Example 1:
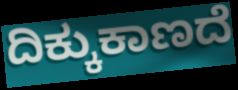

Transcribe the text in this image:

ದಿಕ್ಕುಕಾಣದೆ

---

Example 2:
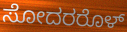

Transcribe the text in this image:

ಸೋದರರೊಳ್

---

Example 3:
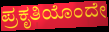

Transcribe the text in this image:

ಪ್ರಕೃತಿಯೊಂದೇ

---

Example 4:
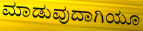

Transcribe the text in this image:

ಮಾಡುವುದಾಗಿಯೂ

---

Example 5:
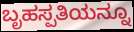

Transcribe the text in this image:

ಬೃಹಸ್ಪತಿಯನ್ನೂ